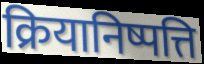
क्रियानिष्पत्ति